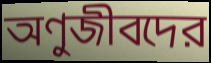
অণুজীবদের